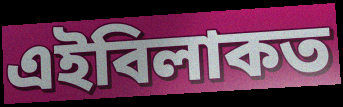
এইবিলাকত